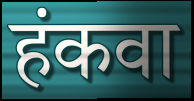
हंकवा